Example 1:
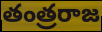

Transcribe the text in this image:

తంత్రరాజ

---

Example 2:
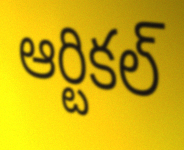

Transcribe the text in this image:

ఆర్టికల్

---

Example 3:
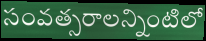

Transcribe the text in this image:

సంవత్సరాలన్నింటిలో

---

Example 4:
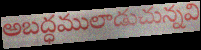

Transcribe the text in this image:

అబద్ధములాడుచున్నవి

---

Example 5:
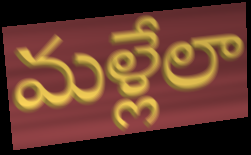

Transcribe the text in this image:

మళ్లేలా